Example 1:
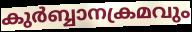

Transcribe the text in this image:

കുർബ്ബാനക്രമവും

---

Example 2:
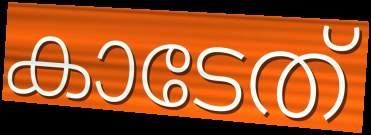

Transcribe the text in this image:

കാടേത്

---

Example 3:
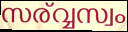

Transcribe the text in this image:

സര്വ്വസ്വം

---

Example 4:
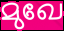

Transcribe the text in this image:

മുഖേ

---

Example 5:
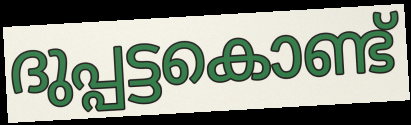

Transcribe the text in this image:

ദുപ്പട്ടകൊണ്ട്